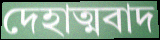
দেহাত্মবাদ